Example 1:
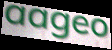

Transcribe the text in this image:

aageo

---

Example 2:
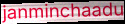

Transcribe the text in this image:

janminchaadu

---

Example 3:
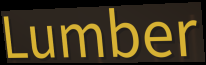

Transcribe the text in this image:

Lumber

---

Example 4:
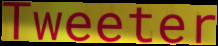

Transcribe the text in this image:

Tweeter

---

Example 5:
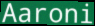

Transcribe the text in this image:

Aaroni